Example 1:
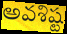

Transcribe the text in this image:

అవశిష్ట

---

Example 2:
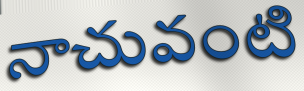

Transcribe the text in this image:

నాచువంటి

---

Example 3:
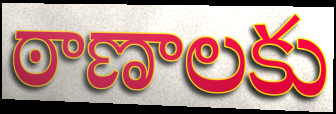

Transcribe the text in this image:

ఠాణాలకు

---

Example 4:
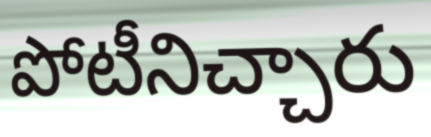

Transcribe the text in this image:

పోటీనిచ్చారు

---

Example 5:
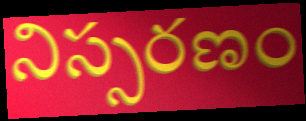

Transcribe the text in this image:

నిస్సరణం